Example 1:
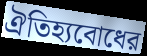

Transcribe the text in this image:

ঐতিহ্যবোধের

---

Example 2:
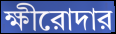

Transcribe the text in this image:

ক্ষীরোদার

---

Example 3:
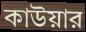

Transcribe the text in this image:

কাউয়ার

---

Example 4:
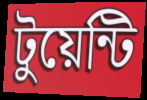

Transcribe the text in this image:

টুয়েন্টি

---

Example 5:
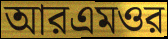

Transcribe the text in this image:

আরএমওর